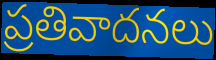
ప్రతివాదనలు